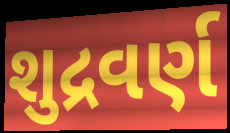
શુદ્રવર્ણ